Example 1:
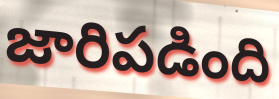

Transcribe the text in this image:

జారిపడింది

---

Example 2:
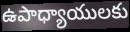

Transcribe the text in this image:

ఉపాధ్యాయులకు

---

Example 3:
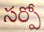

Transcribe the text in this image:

సర్పో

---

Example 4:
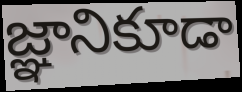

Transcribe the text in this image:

జ్ఞానికూడా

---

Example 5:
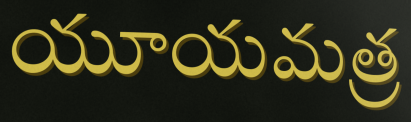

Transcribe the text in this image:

యూయమత్ర